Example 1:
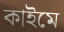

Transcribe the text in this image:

কাইমে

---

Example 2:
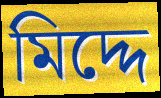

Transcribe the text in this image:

মিদ্দে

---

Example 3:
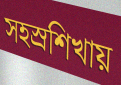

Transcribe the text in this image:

সহস্রশিখায়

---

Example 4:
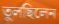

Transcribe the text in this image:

তুলছিলেন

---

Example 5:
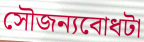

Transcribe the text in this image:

সৌজন্যবোধটা